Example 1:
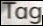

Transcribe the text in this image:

Tag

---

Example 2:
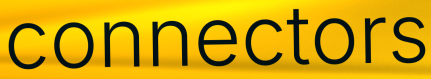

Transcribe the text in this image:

connectors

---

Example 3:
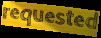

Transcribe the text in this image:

requested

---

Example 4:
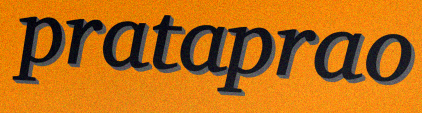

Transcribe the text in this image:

prataprao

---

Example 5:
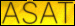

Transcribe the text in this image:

ASAT